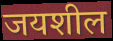
जयशील